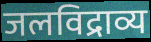
जलविद्राव्य